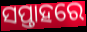
ସପ୍ତାହରେ